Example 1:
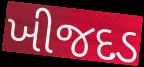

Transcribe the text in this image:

ખીજદડ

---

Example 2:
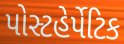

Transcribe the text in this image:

પોસ્ટહેર્પેટિક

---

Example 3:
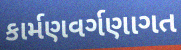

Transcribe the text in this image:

કાર્મણવર્ગણાગત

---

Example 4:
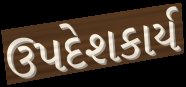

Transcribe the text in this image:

ઉપદેશકાર્ય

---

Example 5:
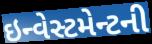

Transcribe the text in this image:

ઇન્વેસ્ટમેન્ટની